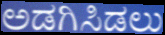
ಅಡಗಿಸಿಡಲು